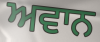
ਅਵਾਨ